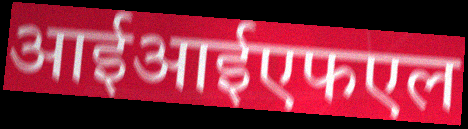
आईआईएफएल